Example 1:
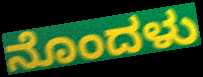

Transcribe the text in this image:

ನೊಂದಳು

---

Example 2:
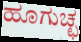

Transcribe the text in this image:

ಹೂಗುಚ್ಛ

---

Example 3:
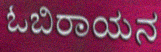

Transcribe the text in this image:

ಓಬಿರಾಯನ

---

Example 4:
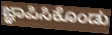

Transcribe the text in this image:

ಜ್ಞಾಪಿಸಿಕೊಂಡು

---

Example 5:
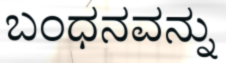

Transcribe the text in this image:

ಬಂಧನವನ್ನು